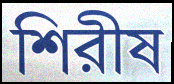
শিরীষ